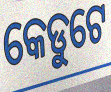
କେଡୁଟେ